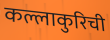
कल्लाकुरिची